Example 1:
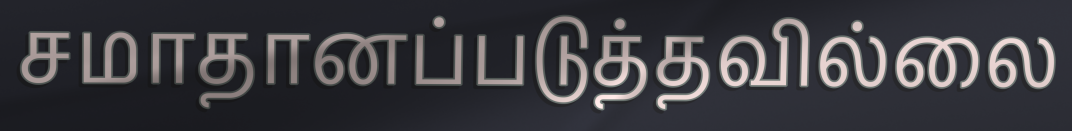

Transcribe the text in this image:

சமாதானப்படுத்தவில்லை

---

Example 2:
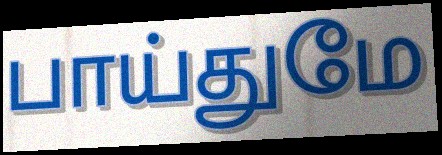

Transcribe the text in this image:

பாய்துமே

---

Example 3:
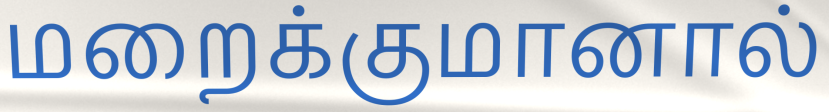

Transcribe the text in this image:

மறைக்குமானால்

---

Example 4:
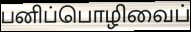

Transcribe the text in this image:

பனிப்பொழிவைப்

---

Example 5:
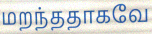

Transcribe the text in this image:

மறந்ததாகவே